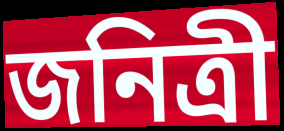
জনিত্রী